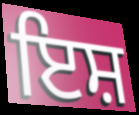
ਇਸ਼